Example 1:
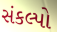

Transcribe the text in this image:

સંકલ્પો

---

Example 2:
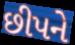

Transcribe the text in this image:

છીપને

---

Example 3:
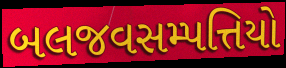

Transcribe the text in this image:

બલજવસમ્પત્તિયો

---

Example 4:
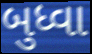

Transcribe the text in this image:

બુધ્વા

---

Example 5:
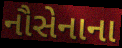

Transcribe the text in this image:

નૌસેનાના